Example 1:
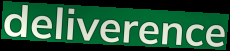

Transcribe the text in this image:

deliverence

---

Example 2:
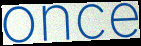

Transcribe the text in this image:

once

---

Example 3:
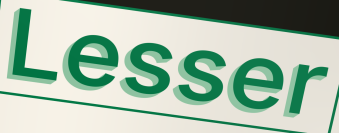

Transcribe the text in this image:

Lesser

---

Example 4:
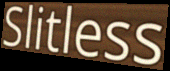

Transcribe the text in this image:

Slitless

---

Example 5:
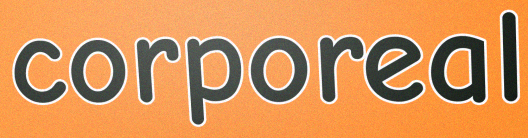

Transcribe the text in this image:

corporeal